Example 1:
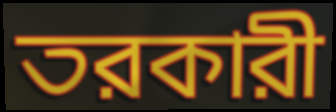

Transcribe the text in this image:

তরকারী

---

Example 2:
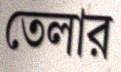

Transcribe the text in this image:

তেলার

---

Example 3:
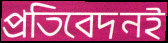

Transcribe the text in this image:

প্রতিবেদনই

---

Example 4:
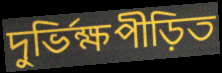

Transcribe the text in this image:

দুর্ভিক্ষপীড়িত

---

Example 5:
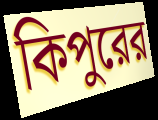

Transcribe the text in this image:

কিপুরের